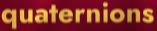
quaternions